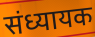
संध्यायक